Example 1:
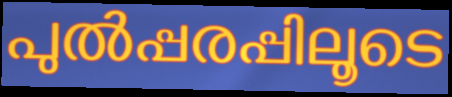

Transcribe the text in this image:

പുൽപ്പരപ്പിലൂടെ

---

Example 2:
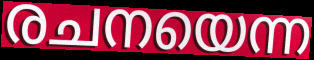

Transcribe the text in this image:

രചനയെന്ന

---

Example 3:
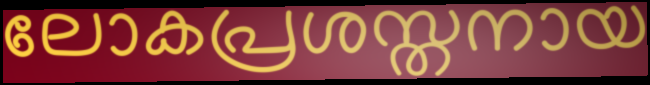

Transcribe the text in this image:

ലോകപ്രശസ്തനായ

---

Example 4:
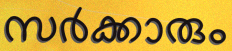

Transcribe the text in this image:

സർക്കാരും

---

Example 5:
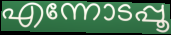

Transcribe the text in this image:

എന്നോടപ്പൂ